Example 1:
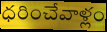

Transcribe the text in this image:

ధరించేవాళ్లం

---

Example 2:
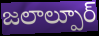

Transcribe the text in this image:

జలాల్పూర్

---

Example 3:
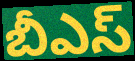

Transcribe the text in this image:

బీఎస్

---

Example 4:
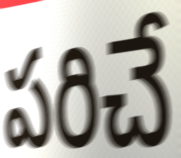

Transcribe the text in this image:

పరిచే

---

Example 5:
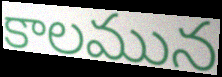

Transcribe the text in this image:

కాలమున